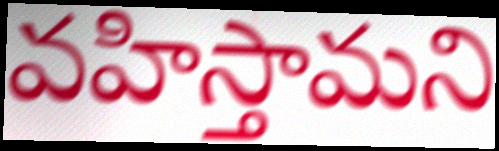
వహిస్తామని